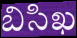
బిసిఖ